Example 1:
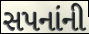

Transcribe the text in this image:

સપનાંની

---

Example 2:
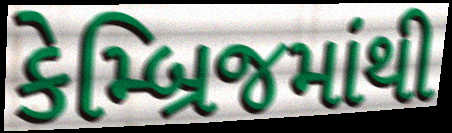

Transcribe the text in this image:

કેમ્બ્રિજમાંથી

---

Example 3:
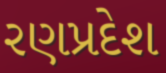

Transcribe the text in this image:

રણપ્રદેશ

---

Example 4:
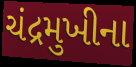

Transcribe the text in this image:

ચંદ્રમુખીના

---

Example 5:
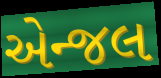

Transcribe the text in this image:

એન્જલ